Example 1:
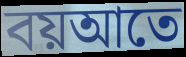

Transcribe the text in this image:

বয়আতে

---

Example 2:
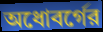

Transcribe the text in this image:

অধোবর্গের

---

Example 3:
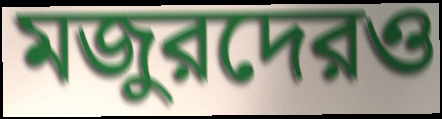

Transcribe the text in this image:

মজুরদেরও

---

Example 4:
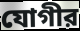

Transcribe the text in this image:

যোগীর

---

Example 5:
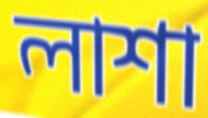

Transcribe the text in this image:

লাশা